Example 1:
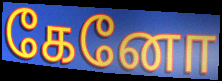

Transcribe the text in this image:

கேனோ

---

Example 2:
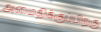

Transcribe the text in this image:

அமைதிக்குப்பிறகு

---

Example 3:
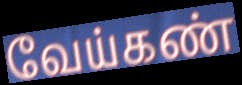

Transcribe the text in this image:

வேய்கண்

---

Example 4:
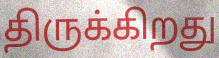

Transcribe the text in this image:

திருக்கிறது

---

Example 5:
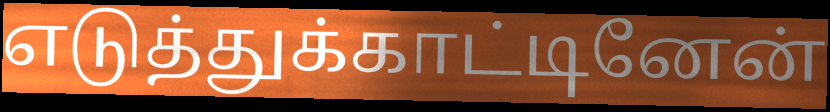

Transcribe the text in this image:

எடுத்துக்காட்டினேன்